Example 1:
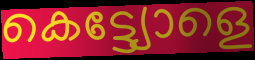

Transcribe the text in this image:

കെട്ട്യോളെ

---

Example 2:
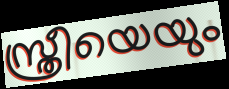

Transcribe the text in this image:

സ്ത്രീയെയും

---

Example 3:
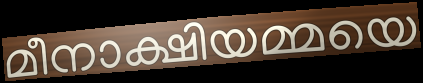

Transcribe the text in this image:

മീനാക്ഷിയമ്മയെ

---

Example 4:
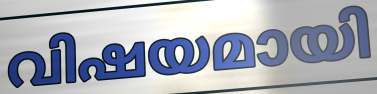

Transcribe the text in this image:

വിഷയമായി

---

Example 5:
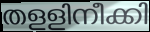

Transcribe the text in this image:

തളളിനീക്കി